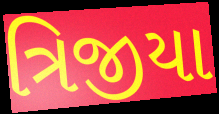
ત્રિજીયા